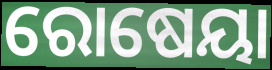
ରୋଷେୟା